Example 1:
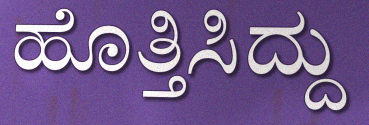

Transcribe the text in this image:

ಹೊತ್ತಿಸಿದ್ದು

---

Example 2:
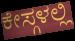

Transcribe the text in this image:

ಕೇಸ್ಗಳಲ್ಲಿ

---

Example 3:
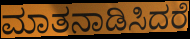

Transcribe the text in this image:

ಮಾತನಾಡಿಸಿದರೆ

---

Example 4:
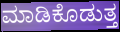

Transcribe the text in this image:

ಮಾಡಿಕೊಡುತ್ತ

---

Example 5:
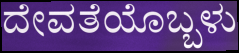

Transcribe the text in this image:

ದೇವತೆಯೊಬ್ಬಳು